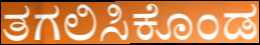
ತಗಲಿಸಿಕೊಂಡ